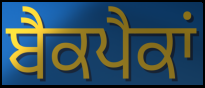
ਬੈਕਪੈਕਾਂ